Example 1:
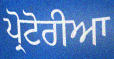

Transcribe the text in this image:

ਪ੍ਰੋਟੋਰੀਆ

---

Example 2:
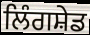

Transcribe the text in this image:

ਲਿੰਗਸ਼ੇਡ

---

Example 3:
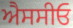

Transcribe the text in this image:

ਐਸਸੀਓ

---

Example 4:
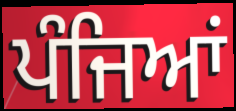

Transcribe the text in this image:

ਪੰਜਿਆਂ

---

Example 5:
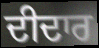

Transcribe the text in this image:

ਦੀਦਾਰ